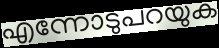
എന്നോടുപറയുക